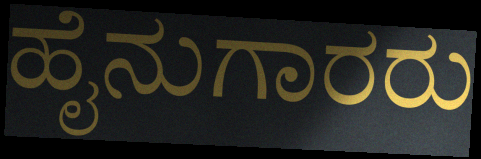
ಹೈನುಗಾರರು